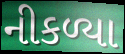
નીકળ્યા